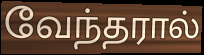
வேந்தரால்